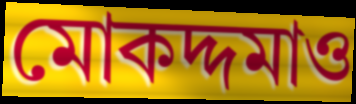
মোকদ্দমাও